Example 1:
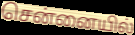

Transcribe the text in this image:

சென்னையில்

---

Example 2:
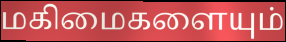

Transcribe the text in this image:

மகிமைகளையும்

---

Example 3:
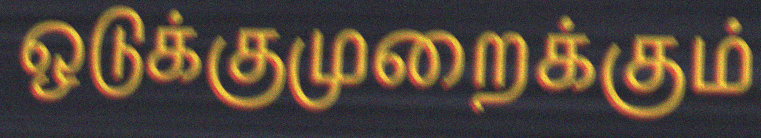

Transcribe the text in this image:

ஒடுக்குமுறைக்கும்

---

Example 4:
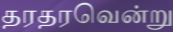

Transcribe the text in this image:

தரதரவென்று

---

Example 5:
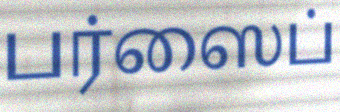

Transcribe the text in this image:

பர்ஸைப்